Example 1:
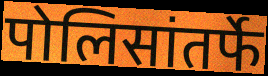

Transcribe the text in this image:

पोलिसांतर्फे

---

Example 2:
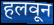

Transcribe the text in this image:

हलवून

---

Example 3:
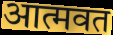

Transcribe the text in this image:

आत्मवत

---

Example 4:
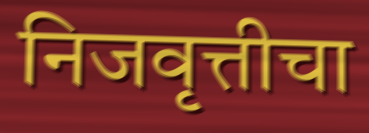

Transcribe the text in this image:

निजवृत्तीचा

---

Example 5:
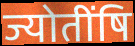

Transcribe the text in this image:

ज्योतींषि